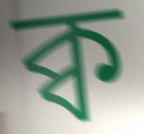
ক্ব